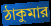
ঠাকুমার